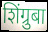
शिंग्रुबा